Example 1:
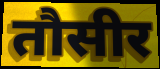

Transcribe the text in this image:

तौसीर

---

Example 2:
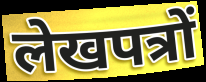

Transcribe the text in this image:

लेखपत्रों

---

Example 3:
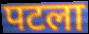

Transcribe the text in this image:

पटला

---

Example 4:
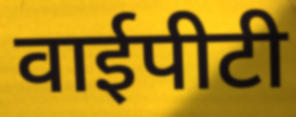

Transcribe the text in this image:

वाईपीटी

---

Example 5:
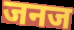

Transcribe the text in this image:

जनज